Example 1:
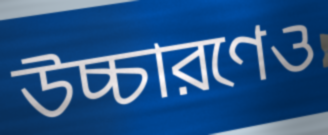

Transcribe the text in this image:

উচ্চারণেও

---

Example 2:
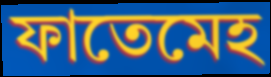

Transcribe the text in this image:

ফাতেমেহ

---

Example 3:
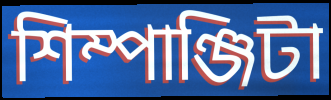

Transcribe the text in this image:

শিম্পাঞ্জিটা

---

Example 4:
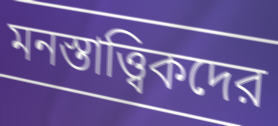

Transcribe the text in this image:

মনস্তাত্ত্বিকদের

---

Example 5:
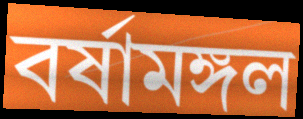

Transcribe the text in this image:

বর্ষামঙ্গল